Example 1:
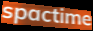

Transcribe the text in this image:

spactime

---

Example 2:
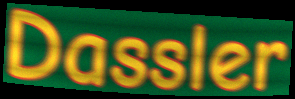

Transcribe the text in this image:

Dassler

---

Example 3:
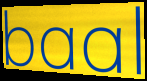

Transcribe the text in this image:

baal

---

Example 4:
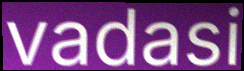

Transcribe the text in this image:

vadasi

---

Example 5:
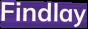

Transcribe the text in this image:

Findlay